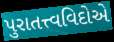
પુરાતત્ત્વવિદોએ